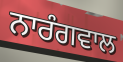
ਨਾਰੰਗਵਾਲ